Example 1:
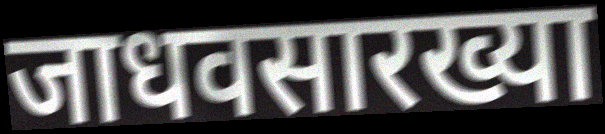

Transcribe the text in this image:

जाधवसारख्या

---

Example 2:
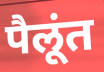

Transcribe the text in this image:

पैलूंत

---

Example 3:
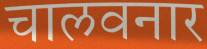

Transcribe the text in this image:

चालवनार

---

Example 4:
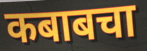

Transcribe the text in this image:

कबाबचा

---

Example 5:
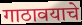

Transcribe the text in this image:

गाठावयाचे